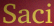
Saci